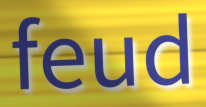
feud